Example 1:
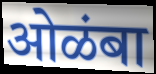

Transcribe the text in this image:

ओळंबा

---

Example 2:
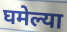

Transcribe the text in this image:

घमेल्या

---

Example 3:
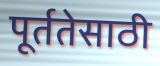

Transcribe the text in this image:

पूर्ततेसाठी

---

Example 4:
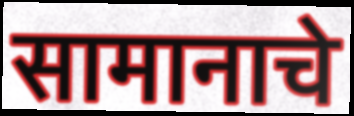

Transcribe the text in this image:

सामानाचे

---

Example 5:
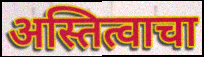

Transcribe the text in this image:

अस्तित्वाचा